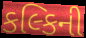
કલ્કિની